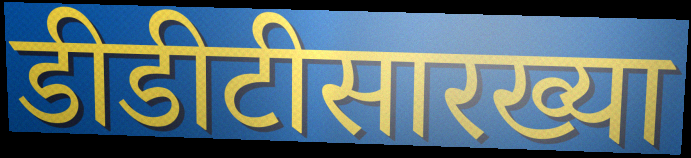
डीडीटीसारख्या